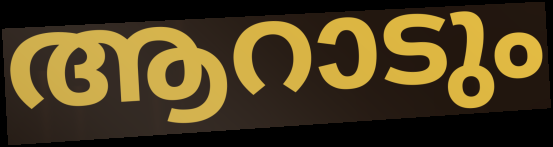
ആറാടും